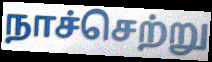
நாச்செற்று